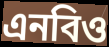
এনবিও